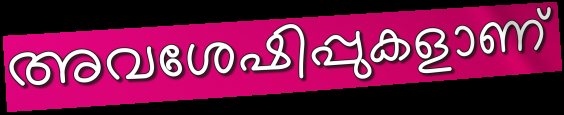
അവശേഷിപ്പുകളാണ്